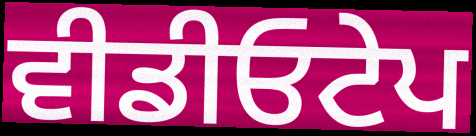
ਵੀਡੀਓਟੇਪ